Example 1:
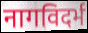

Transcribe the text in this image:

नागविदर्भ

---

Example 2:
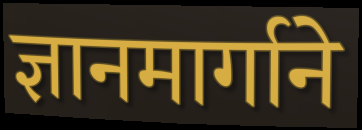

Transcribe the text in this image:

ज्ञानमार्गाने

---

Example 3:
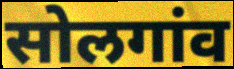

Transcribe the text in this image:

सोलगांव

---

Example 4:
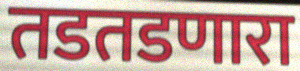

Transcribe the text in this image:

तडतडणारा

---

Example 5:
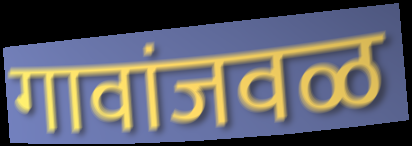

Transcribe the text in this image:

गावांजवळ